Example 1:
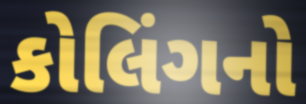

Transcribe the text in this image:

કોલિંગનો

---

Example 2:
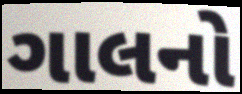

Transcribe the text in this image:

ગાલનો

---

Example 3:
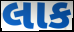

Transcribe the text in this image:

લાક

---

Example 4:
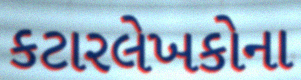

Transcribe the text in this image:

કટારલેખકોના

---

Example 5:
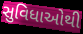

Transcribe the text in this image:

સુવિધાઓથી